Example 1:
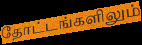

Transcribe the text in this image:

தோட்டங்களிலும்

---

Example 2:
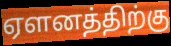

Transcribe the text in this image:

ஏளனத்திற்கு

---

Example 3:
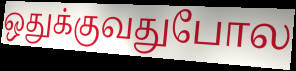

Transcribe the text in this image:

ஒதுக்குவதுபோல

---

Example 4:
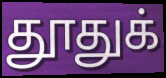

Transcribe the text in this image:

தூதுக்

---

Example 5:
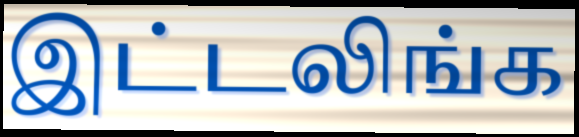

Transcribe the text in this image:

இட்டலிங்க